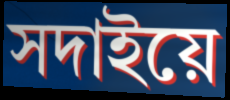
সদাইয়ে